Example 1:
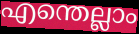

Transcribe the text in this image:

എന്തെല്ലാം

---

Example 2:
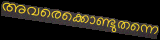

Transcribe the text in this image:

അവരെക്കൊണ്ടുതന്നെ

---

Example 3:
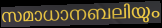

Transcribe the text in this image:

സമാധാനബലിയും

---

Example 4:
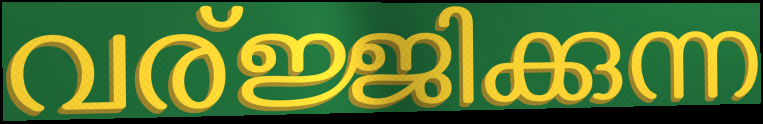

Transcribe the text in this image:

വര്ജ്ജിക്കുന്ന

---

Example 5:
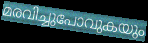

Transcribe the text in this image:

മരവിച്ചുപോവുകയും